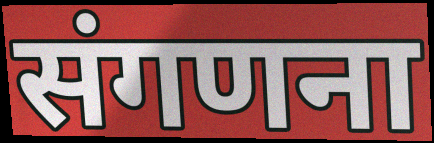
संगणना